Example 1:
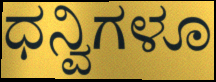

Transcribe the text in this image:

ಧನ್ವಿಗಳೂ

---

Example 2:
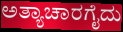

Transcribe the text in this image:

ಅತ್ಯಾಚಾರಗೈದು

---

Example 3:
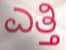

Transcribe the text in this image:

ಎತ್ತಿ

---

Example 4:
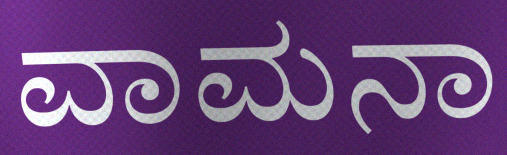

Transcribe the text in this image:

ವಾಮನಾ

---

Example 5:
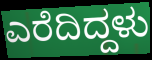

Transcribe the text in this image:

ಎರೆದಿದ್ದಳು